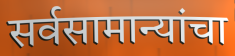
सर्वसामान्यांचा